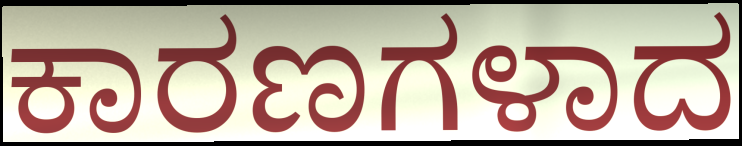
ಕಾರಣಗಳಾದ